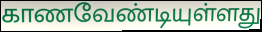
காணவேண்டியுள்ளது